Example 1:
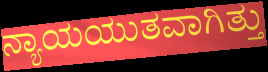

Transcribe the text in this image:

ನ್ಯಾಯಯುತವಾಗಿತ್ತು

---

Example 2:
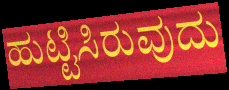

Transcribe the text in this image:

ಹುಟ್ಟಿಸಿರುವುದು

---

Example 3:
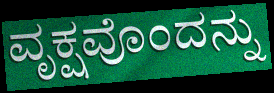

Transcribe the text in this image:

ವೃಕ್ಷವೊಂದನ್ನು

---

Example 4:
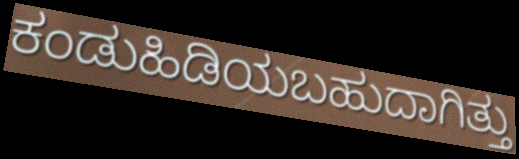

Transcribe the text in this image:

ಕಂಡುಹಿಡಿಯಬಹುದಾಗಿತ್ತು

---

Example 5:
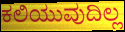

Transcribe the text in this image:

ಕಲಿಯುವುದಿಲ್ಲ